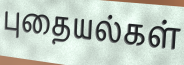
புதையல்கள்